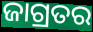
ଜାଗ୍ରତର